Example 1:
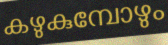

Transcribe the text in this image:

കഴുകുമ്പോഴും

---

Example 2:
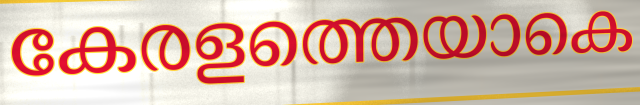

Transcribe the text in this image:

കേരളത്തെയാകെ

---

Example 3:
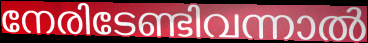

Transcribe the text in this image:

നേരിടേണ്ടിവന്നാൽ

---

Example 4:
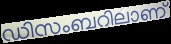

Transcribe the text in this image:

ഡിസംബറിലാണ്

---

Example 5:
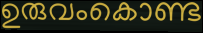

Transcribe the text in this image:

ഉരുവംകൊണ്ട